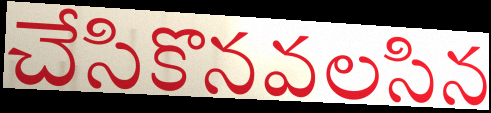
చేసికొనవలసిన